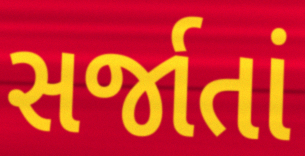
સર્જાતાં